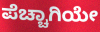
ಪೆಚ್ಚಾಗಿಯೇ